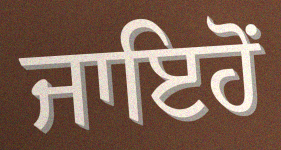
ਜਾਇਹੋਂ